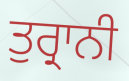
ਤੁਰ੍ਰਾਨੀ